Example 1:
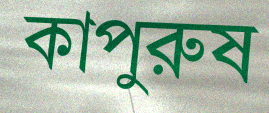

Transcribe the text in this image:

কাপুরুষ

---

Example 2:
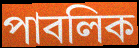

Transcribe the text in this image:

পাবলিক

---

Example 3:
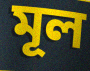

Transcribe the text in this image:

মূল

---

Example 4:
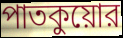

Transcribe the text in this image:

পাতকুয়োর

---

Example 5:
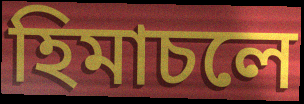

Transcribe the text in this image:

হিমাচলে